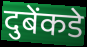
दुबेंकडे